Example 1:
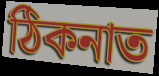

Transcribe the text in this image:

ঠিকনাত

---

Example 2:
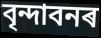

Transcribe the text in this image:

বৃন্দাবনৰ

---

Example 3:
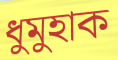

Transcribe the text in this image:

ধুমুহাক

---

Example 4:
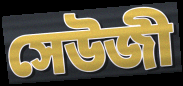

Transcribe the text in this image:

সেউজী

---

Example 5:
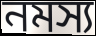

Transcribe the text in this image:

নমস্য